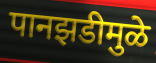
पानझडीमुळे